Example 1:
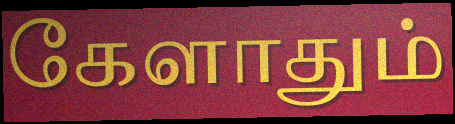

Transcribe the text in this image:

கேளாதும்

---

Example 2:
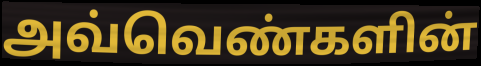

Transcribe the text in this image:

அவ்வெண்களின்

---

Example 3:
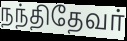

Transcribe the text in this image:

நந்திதேவர்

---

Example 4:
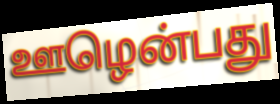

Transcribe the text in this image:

ஊழென்பது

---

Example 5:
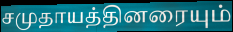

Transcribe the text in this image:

சமுதாயத்தினரையும்